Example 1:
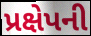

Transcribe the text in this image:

પ્રક્ષેપની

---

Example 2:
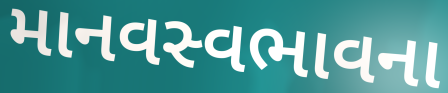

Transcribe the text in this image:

માનવસ્વભાવના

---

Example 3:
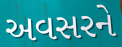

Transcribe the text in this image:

અવસરને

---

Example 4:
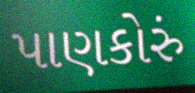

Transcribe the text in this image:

પાણકોરું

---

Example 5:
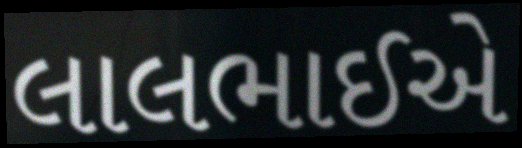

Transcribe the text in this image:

લાલભાઈએ